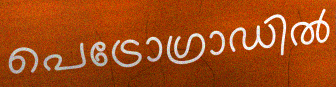
പെട്രോഗ്രാഡിൽ